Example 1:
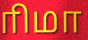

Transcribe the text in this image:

ரிமா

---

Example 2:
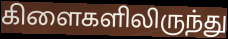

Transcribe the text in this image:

கிளைகளிலிருந்து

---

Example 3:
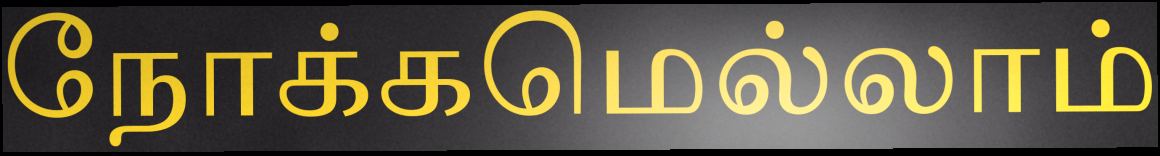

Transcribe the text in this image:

நோக்கமெல்லாம்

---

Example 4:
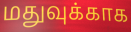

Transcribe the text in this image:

மதுவுக்காக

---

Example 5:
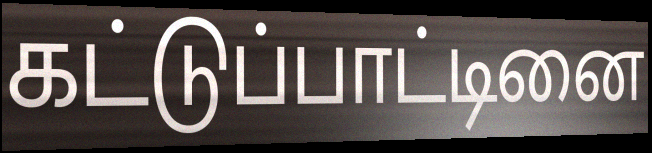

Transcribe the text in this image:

கட்டுப்பாட்டினை